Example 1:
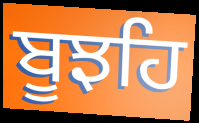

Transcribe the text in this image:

ਬੂਝਹਿ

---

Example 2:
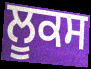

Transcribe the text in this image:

ਲੂਕਸ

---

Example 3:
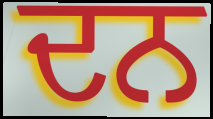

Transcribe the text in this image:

ਦਨ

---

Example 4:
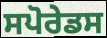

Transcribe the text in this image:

ਸਪੋਰੇਡਸ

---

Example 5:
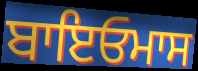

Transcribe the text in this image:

ਬਾਇਓਮਾਸ